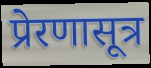
प्रेरणासूत्र